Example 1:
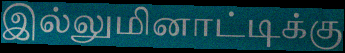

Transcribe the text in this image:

இல்லுமினாட்டிக்கு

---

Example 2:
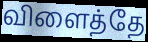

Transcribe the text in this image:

விளைத்தே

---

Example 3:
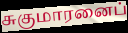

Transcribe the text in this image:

சுகுமாரனைப்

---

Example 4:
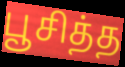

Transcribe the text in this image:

பூசித்த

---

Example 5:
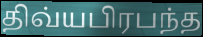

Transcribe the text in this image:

திவ்யபிரபந்த